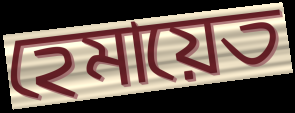
হেমায়েত